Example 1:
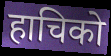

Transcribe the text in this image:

हाचिको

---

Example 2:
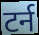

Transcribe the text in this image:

टर्न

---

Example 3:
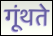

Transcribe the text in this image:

गूंथते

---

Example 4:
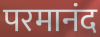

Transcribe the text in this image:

परमानंद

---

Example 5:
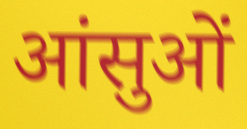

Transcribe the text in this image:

आंसुओं